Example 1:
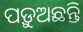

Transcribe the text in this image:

ପଡ଼ୁଅଛନ୍ତି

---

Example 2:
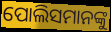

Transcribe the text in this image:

ପୋଲିସମାନଙ୍କୁ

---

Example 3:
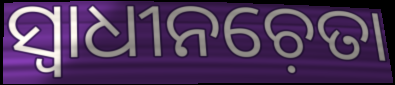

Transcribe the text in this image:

ସ୍ୱାଧୀନଚ଼େତା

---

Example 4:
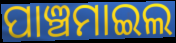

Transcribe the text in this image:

ପାଞ୍ଚମାଇଲ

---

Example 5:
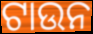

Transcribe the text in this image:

ଟାଉନ